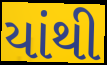
યાંથી